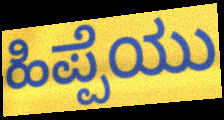
ಹಿಪ್ಪೆಯು